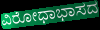
ವಿರೋಧಾಭಾಸದ